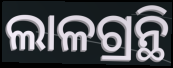
ଲାଳଗ୍ରନ୍ଥି